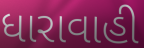
ધારાવાહી